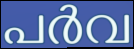
പർവ